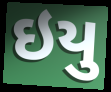
ઇયુ